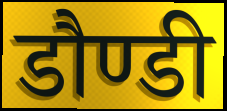
डौण्डी